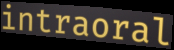
intraoral